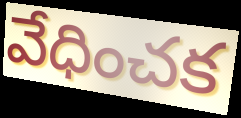
వేధించక